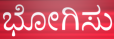
ಭೋಗಿಸು